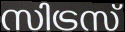
സിട്രസ്